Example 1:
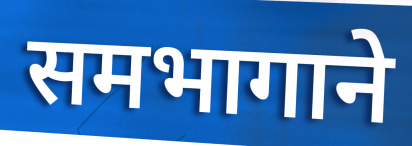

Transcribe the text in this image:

समभागाने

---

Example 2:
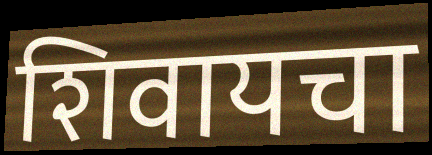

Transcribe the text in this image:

शिवायचा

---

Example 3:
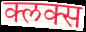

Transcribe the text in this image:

क्लक्स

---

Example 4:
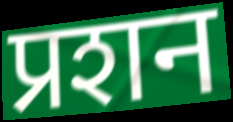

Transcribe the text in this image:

प्रशन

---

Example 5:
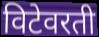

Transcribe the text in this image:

विटेवरती